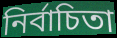
নির্বাচিতা